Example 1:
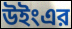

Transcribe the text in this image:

উইংএর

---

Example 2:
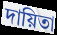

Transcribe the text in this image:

দায়িতা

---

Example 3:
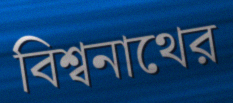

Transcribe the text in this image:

বিশ্বনাথের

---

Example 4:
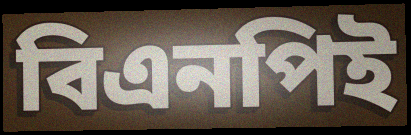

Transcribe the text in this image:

বিএনপিই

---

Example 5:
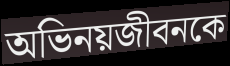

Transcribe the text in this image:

অভিনয়জীবনকে